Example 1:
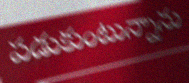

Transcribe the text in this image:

పడుకుంటున్నాను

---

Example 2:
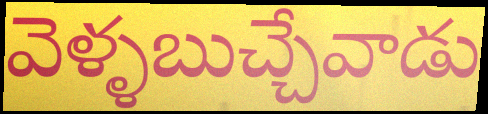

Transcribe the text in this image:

వెళ్ళబుచ్చేవాడు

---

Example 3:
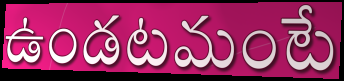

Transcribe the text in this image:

ఉండటమంటే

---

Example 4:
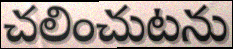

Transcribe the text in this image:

చలించుటను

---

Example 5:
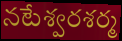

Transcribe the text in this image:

నటేశ్వరశర్మ